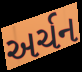
અર્ચન